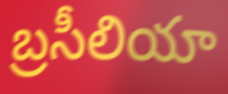
బ్రసీలియా